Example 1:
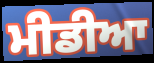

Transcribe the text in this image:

ਮੀਡੀਆ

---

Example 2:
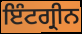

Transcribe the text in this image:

ਇੰਟਗ੍ਰੀਨ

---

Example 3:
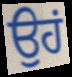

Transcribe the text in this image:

ਉਹਂ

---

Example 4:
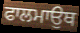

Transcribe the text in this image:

ਫਾਲਮਾਉਥ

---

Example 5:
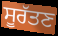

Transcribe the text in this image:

ਸੂਰੱਤਣ